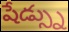
షేడ్స్ను